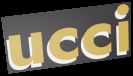
ucci